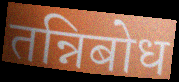
तन्निबोध